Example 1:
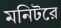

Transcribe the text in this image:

মনিটরে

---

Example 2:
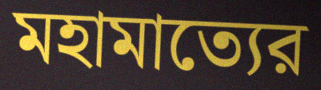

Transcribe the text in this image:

মহামাত্যের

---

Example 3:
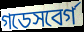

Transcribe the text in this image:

গডেসবের্গ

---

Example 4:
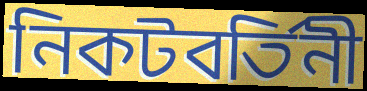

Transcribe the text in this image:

নিকটবর্তিনী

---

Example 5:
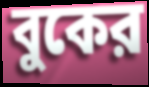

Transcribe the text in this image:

বুকের